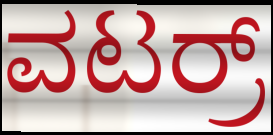
ವಟರ್ರ್